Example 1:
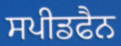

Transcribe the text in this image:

ਸਪੀਡਫੈਨ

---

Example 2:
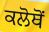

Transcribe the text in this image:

ਕਲੋਥੋਂ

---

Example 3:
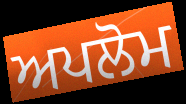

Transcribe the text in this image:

ਅਪਲੋਮ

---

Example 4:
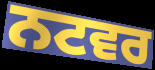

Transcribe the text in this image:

ਨਟਵਰ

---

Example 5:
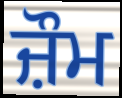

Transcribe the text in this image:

ਜ਼ੌਮ